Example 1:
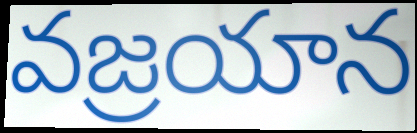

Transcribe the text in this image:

వజ్రయాన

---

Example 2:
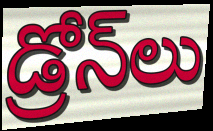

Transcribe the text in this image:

డ్రోన్‌లు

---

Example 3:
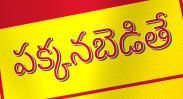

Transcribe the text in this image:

పక్కనబెడితే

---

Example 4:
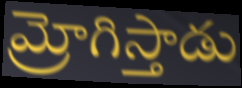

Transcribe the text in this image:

మ్రోగిస్తాడు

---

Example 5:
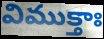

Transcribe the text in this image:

విముక్తాః